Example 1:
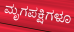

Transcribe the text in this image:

ಮೃಗಪಕ್ಷಿಗಳೂ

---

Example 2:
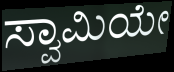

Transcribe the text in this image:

ಸ್ವಾಮಿಯೇ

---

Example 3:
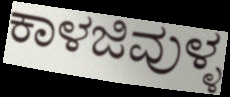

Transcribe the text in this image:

ಕಾಳಜಿವುಳ್ಳ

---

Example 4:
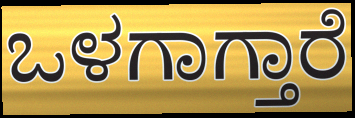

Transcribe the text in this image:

ಒಳಗಾಗ್ತಾರೆ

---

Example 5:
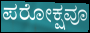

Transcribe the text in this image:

ಪರೋಕ್ಷವೂ